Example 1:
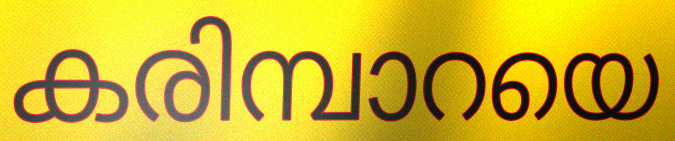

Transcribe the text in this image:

കരിമ്പാറയെ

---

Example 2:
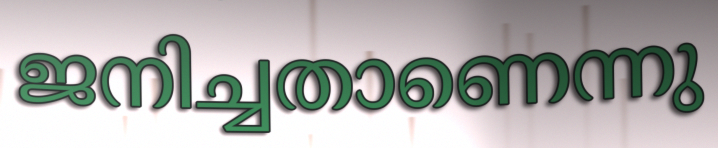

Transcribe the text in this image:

ജനിച്ചതാണെന്നു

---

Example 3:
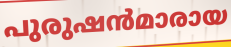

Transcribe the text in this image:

പുരുഷൻമാരായ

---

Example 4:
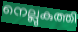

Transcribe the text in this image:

നെല്ലുകുത്തി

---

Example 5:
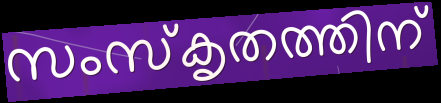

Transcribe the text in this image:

സംസ്കൃതത്തിന്